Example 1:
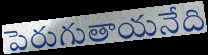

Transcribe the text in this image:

పెరుగుతాయనేది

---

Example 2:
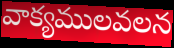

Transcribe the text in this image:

వాక్యములవలన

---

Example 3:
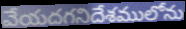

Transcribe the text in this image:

వేయదగనిదేశములోను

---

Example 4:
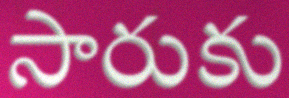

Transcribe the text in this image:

సారుకు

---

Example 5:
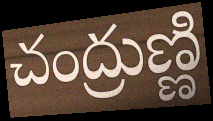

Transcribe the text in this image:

చంద్రుణ్ణి